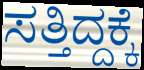
ಸತ್ತಿದ್ದಕ್ಕೆ